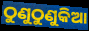
ଠୁଣୁଠୁଣୁକିଆ